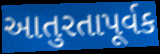
આતુરતાપૂર્વક